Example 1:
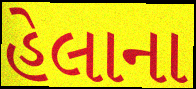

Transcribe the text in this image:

હેલાના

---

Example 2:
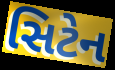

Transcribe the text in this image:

સિટેન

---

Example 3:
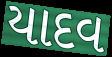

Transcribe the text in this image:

યાદવ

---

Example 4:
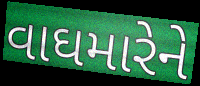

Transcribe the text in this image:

વાઘમારેને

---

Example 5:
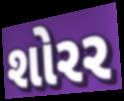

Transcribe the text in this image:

શોરર